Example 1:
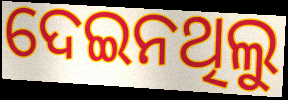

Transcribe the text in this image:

ଦେଇନଥିଲୁ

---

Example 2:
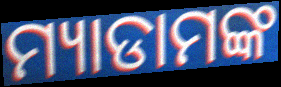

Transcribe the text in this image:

ମ୍ୟାଡାମଙ୍କ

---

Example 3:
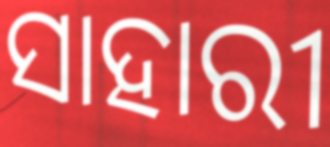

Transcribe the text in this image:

ସାହାରୀ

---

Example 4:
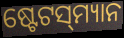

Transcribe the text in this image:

ଷ୍ଟେଟସ୍‌ମ୍ୟାନ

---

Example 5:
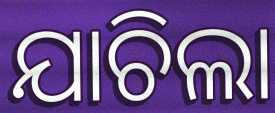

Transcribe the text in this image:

ଯାଚିଲା